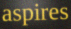
aspires